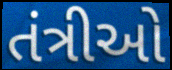
તંત્રીઓ